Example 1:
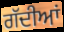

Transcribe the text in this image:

ਗੱਦੀਆਂ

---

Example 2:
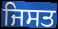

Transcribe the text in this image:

ਜਿਸਤ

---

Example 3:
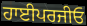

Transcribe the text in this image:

ਹਾਈਪਰਜੀਓ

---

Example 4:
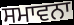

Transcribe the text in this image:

ਸਮਾਵਨਾ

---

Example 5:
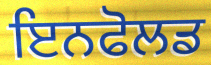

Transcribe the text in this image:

ਇਨਫੋਲਡ